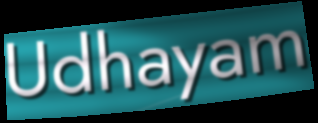
Udhayam